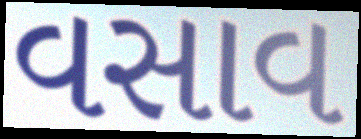
વસાવ